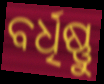
ବର୍ଧିଷ୍ଣୁ